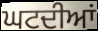
ਘਟਦੀਆਂ